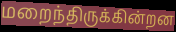
மறைந்திருக்கின்றன